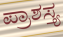
ಪ್ರಾಶಸ್ತ್ಯ